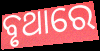
ବୃଥାରେ